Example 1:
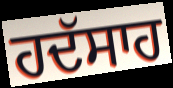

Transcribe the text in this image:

ਹਦੱਸਾਹ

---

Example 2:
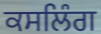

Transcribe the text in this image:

ਕਸਲਿੰਗ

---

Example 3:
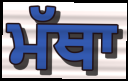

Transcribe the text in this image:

ਮੱਥਾ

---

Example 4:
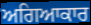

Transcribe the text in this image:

ਅਗਿਆਕਾਰ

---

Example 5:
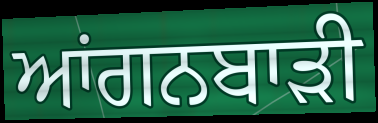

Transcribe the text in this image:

ਆਂਗਨਬਾੜੀ